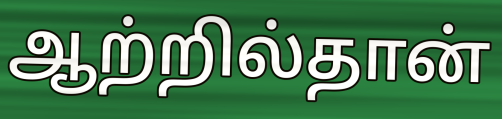
ஆற்றில்தான்